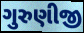
ગુરુણીજી